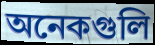
অনেকগুলি